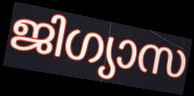
ജിഗ്യാസ